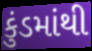
કુંડમાંથી